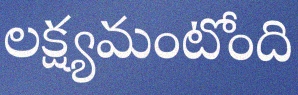
లక్ష్యమంటోంది